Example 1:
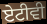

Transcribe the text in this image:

ਏਟੀਵੀ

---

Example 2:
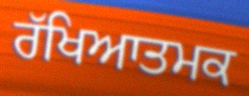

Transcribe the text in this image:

ਰੱਖਿਆਤਮਕ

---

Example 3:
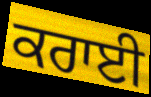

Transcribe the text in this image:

ਕਰਾਈ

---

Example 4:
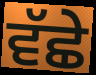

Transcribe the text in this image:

ਵੱਛੇ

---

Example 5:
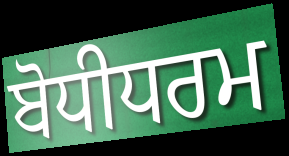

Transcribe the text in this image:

ਬੋਧੀਧਰਮ